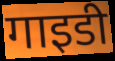
गाइडी